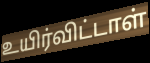
உயிர்விட்டாள்